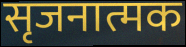
सृजनात्मक